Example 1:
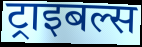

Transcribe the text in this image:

ट्राइबल्स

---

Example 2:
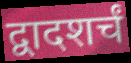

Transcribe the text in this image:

द्वादशर्चं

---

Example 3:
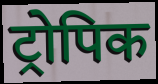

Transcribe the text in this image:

ट्रोपिक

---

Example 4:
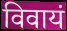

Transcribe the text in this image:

विवायं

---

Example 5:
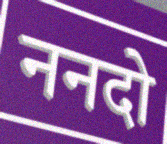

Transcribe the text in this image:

ननदो